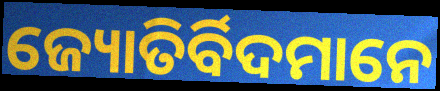
ଜ୍ୟୋତିର୍ବିଦମାନେ